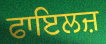
ਫਾਇਲਜ਼